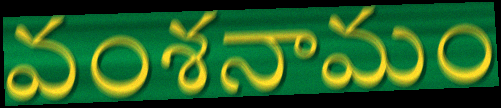
వంశనామం